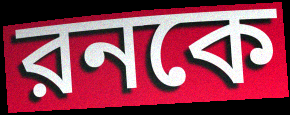
রনকে